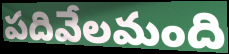
పదివేలమంది